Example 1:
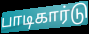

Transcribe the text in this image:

பாடிகார்டு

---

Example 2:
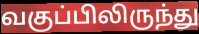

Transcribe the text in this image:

வகுப்பிலிருந்து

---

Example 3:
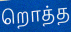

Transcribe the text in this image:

றொத்த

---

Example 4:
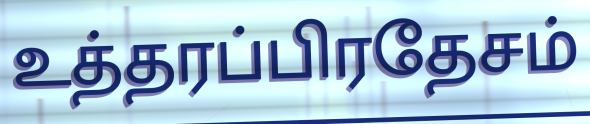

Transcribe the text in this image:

உத்தரப்பிரதேசம்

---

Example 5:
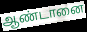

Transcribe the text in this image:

ஆண்டானை